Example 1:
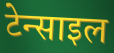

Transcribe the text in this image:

टेन्साइल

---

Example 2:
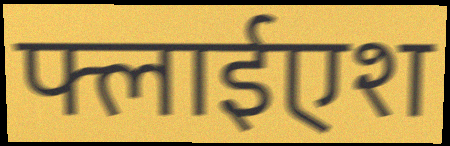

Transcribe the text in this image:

फ्लाईएश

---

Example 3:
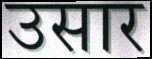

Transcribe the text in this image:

उसार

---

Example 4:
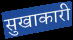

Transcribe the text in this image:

सुखाकारी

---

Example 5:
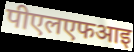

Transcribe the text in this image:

पीएलएफआइ